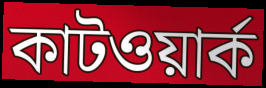
কাটওয়ার্ক